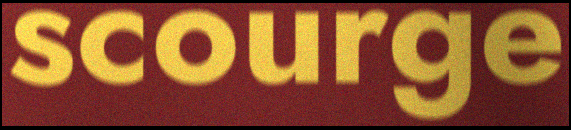
scourge